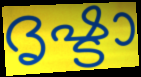
ദൃഷ്ടാ